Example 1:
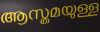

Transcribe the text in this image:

ആസ്തമയുള്ള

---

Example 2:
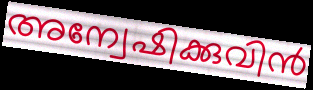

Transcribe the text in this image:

അന്വേഷിക്കുവിൻ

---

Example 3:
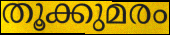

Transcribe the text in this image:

തൂക്കുമരം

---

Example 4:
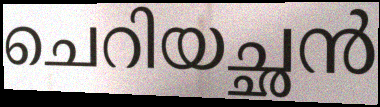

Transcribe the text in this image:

ചെറിയച്ഛൻ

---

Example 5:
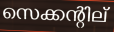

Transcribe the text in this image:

സെക്കന്റില്